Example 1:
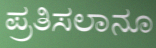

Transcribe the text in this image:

ಪ್ರತಿಸಲಾನೂ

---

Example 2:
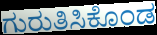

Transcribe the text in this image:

ಗುರುತಿಸಿಕೊಂಡ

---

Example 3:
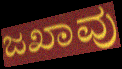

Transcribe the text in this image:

ಜಖಾವು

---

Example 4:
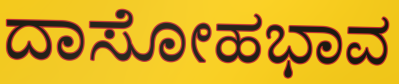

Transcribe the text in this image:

ದಾಸೋಹಭಾವ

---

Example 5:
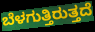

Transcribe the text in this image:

ಬೆಳಗುತ್ತಿರುತ್ತದೆ